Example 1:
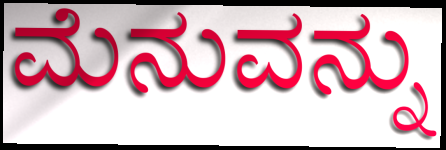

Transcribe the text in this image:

ಮೆನುವನ್ನು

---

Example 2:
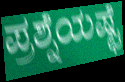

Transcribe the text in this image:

ಪ್ರಶ್ನೆಯಷ್ಟೆ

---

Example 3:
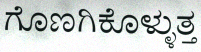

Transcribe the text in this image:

ಗೊಣಗಿಕೊಳ್ಳುತ್ತ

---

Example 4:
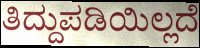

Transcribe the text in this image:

ತಿದ್ದುಪಡಿಯಿಲ್ಲದೆ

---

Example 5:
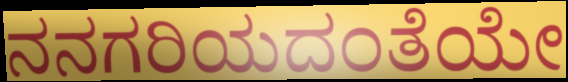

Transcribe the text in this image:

ನನಗರಿಯದಂತೆಯೇ